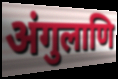
अंगुलाणि